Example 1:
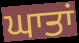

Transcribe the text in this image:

ਘਾਤਾਂ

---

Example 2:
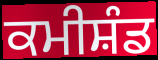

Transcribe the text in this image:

ਕਮੀਸ਼ੰਡ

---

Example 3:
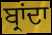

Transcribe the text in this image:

ਬ੍ਰਾਂਦਾ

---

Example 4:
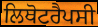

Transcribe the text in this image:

ਲਿਥੋਟਰੈਪਸੀ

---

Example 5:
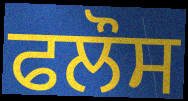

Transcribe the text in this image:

ਫਲੌਸ